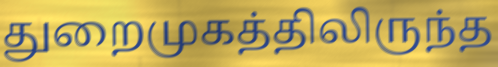
துறைமுகத்திலிருந்த